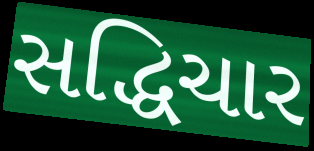
સદ્ધિચાર